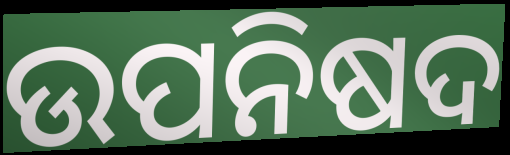
ଉପନିଷଦ